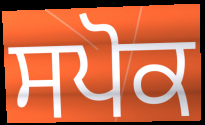
ਸਪੋਕ